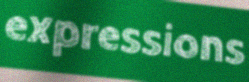
expressions